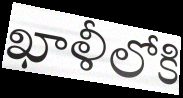
ఖాళీలోకి